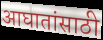
आघातांसाठी